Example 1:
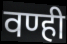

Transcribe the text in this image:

वण्ही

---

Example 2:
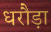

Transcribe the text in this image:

धरौड़ा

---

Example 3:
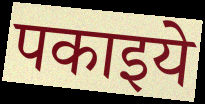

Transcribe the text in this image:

पकाइये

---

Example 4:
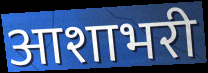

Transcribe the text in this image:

आशाभरी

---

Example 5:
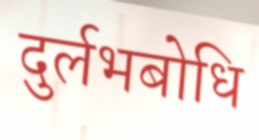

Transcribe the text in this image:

दुर्लभबोधि